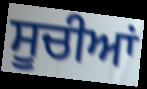
ਸੂਚੀਆਂ